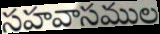
సహవాసముల